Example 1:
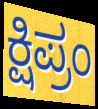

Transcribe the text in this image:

ಕ್ಷಿಪ್ರಂ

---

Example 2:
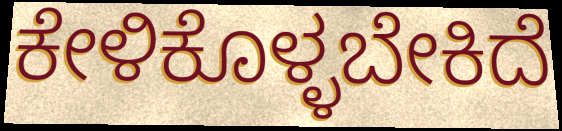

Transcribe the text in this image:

ಕೇಳಿಕೊಳ್ಳಬೇಕಿದೆ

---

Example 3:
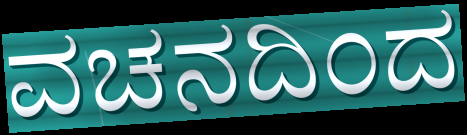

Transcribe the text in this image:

ವಚನದಿಂದ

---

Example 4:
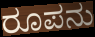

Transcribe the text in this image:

ರೂಪನು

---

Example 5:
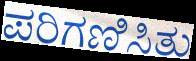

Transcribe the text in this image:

ಪರಿಗಣಿಸಿತು